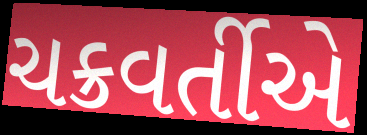
ચક્રવર્તીએ